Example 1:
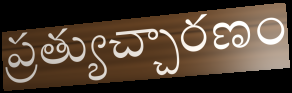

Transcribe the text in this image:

ప్రత్యుచ్చారణం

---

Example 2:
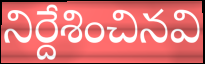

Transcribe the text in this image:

నిర్దేశించినవి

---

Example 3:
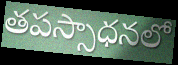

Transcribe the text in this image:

తపస్సాధనలో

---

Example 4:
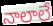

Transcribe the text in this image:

నాలాలే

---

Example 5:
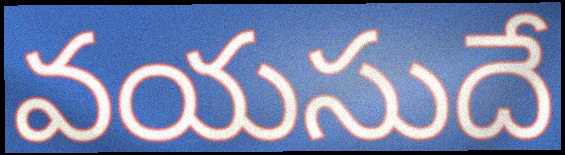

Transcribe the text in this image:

వయసుదే